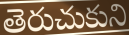
తెరుచుకుని